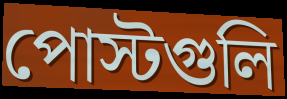
পোস্টগুলি